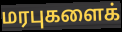
மரபுகளைக்